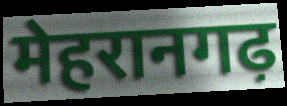
मेहरानगढ़